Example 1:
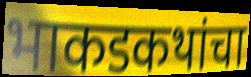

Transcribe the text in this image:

भाकडकथांचा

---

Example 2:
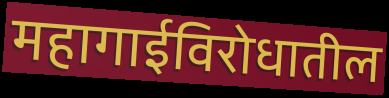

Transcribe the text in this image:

महागाईविरोधातील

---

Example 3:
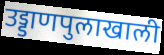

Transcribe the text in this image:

उड्डाणपुलाखाली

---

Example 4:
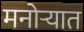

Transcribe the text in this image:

मनोऱ्यात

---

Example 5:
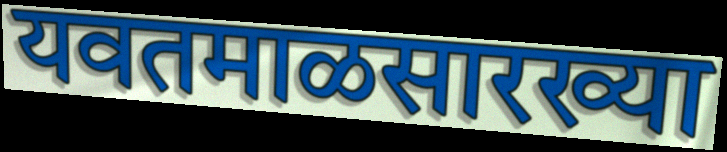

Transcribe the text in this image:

यवतमाळसारख्या